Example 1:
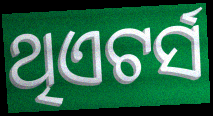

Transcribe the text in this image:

ଥିଏଟର୍ସ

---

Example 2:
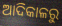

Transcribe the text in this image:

ଆଦିକାଳରୁ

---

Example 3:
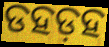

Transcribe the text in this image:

ଡହଡ଼ହ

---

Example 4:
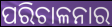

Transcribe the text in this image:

ପରିଚାଳନାର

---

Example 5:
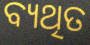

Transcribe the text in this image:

ବ୍ୟଥିତ